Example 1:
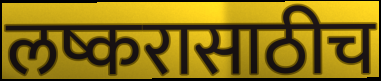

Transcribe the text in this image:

लष्करासाठीच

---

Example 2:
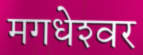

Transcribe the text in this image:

मगधेश्वर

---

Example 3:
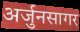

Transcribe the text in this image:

अर्जुनसागर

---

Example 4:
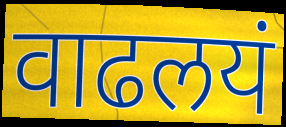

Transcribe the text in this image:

वाढलयं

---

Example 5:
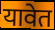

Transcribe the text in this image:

यावेत